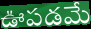
ఊపడమే